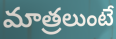
మాత్రలుంటే